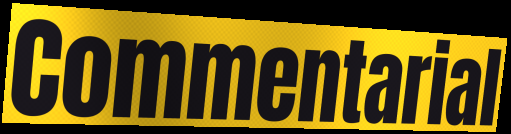
Commentarial